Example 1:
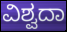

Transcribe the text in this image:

ವಿಶ್ವದಾ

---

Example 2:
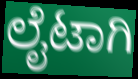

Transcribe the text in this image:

ಲೈಟಾಗಿ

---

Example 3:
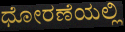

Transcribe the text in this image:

ಧೋರಣೆಯಲ್ಲಿ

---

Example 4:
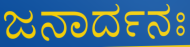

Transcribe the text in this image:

ಜನಾರ್ದನಃ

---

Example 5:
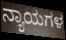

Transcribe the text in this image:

ನ್ಯಾಯಗಳ